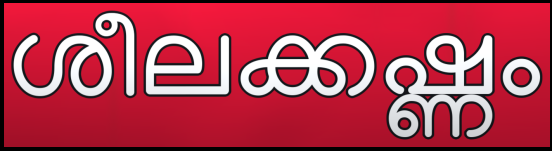
ശീലക്കഷ്ണം